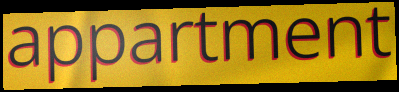
appartment